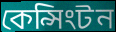
কেন্সিংটন